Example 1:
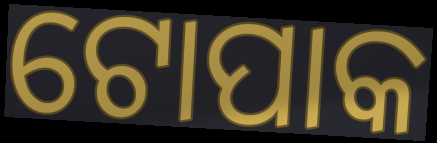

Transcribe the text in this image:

ଟୋପାକ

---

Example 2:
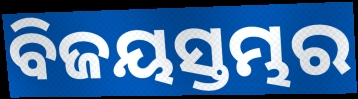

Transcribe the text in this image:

ବିଜୟସ୍ତମ୍ଭର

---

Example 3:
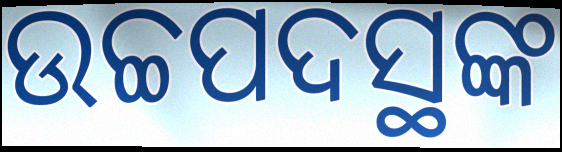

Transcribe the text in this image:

ଉଚ୍ଚପଦସ୍ଥଙ୍କ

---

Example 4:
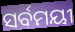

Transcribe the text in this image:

ସର୍ବମୟୀ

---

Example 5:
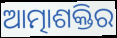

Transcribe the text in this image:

ଆତ୍ମାଶକ୍ତିର